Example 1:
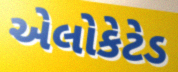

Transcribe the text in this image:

એલોકેટેડ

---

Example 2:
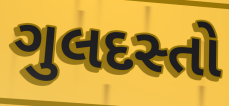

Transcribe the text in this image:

ગુલદસ્તો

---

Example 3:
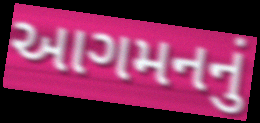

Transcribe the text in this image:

આગમનનું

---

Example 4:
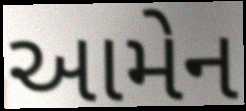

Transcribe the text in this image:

આમેન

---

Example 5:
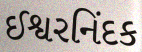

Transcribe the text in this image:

ઈશ્વરનિંદક